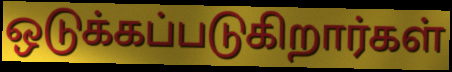
ஒடுக்கப்படுகிறார்கள்